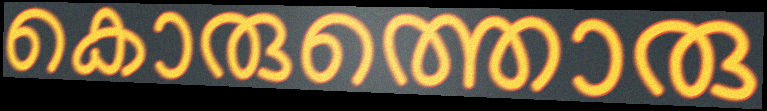
കൊരുത്തൊരു